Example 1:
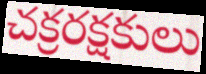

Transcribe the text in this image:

చక్రరక్షకులు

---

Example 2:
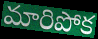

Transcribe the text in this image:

మారిపోక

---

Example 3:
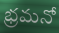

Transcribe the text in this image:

భ్రమనో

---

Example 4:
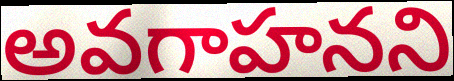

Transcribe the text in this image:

అవగాహనని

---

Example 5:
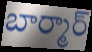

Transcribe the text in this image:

బార్మార్